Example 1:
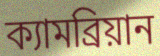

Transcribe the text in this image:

ক্যামব্রিয়ান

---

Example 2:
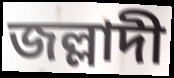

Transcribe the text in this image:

জল্লাদী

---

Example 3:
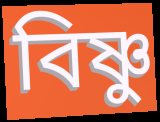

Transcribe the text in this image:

বিষ্ণু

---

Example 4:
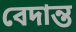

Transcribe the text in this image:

বেদান্ত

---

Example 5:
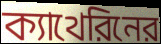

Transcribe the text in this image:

ক্যাথেরিনের